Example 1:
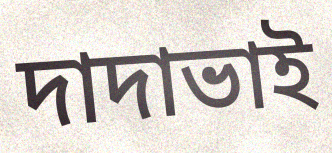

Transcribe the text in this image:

দাদাভাই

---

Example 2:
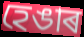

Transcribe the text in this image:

হেঙাৰ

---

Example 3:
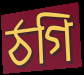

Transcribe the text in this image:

ঠগি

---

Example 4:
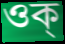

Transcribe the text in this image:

ওক্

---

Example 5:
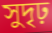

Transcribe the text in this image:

সুদৃঢ়